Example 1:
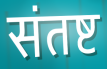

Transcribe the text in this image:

संतष्ट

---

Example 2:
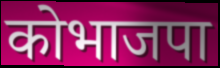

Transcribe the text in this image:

कोभाजपा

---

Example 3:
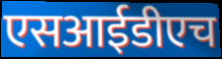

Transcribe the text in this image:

एसआईडीएच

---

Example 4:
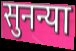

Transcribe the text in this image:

सुनन्या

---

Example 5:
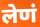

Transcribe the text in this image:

लेणं